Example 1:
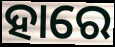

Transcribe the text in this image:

ହାରେ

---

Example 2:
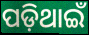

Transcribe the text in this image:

ପଡ଼ିଥାଇଁ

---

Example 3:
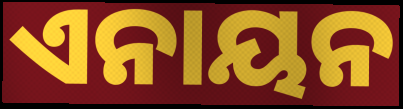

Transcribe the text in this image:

ଏନାୟନ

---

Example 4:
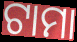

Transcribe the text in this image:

ଟାମା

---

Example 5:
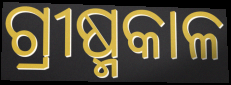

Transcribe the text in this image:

ଗ୍ରୀଷ୍ମକାଳ